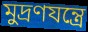
মুদ্রণযন্ত্রে